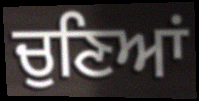
ਚੁਣਿਆਂ